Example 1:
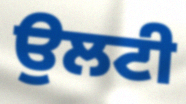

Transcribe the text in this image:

ਉਲਟੀ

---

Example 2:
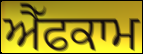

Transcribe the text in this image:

ਐੱਫਕਾਮ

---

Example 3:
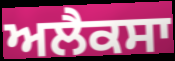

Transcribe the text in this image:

ਅਲੈਕਸਾ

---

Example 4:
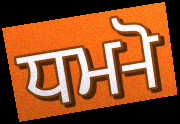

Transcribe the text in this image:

ਧਮ੍ਮੋ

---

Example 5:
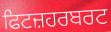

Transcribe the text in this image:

ਫਿਟਜ਼ਹਰਬਰਟ